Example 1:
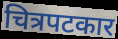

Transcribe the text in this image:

चित्रपटकार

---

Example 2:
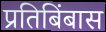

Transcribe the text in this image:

प्रतिबिंबास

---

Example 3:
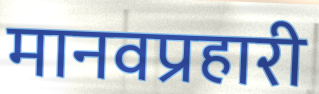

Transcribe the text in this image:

मानवप्रहारी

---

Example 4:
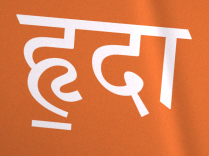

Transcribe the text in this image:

हृ॒दा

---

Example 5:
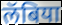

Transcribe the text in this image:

लॅबिया